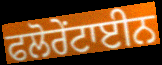
ਫਲੋਰੇਂਟਾਈਨ